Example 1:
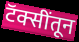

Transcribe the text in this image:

टॅक्सींतून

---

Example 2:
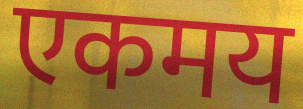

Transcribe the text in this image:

एकमय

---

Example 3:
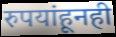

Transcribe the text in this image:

रुपयांहूनही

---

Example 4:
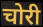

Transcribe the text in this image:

चोरी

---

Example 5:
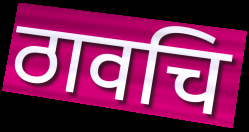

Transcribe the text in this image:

ठावचि